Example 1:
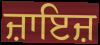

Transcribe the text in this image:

ਜ਼ਾਇਜ਼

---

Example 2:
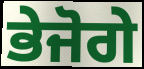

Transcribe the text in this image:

ਭੇਜੋਗੇ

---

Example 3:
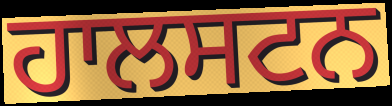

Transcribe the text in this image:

ਹਾਲਸਟਨ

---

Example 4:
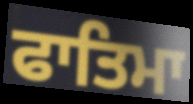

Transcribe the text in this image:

ਫਾਤਿਮਾ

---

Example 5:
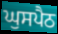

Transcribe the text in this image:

ਘੁਸਪੈਠ